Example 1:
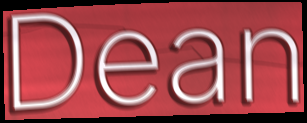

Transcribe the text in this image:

Dean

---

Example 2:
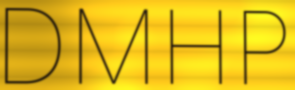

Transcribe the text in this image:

DMHP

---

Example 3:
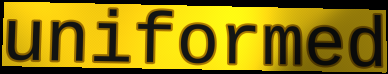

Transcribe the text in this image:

uniformed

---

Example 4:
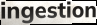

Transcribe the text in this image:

ingestion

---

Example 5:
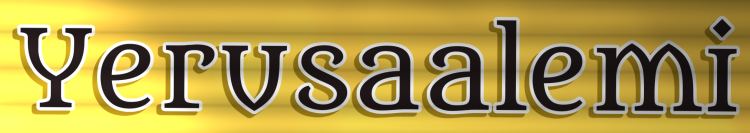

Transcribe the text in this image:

Yerusaalemi